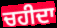
ਚਹੀਦਾ